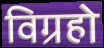
विग्रहो